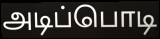
அடிப்பொடி